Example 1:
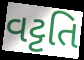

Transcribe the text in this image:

વટ્ટતિ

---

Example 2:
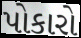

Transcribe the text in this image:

પોકારો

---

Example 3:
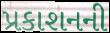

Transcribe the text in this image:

પ્રકાશનની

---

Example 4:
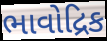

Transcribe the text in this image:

ભાવોદ્રિક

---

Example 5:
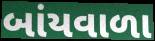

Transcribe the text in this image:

બાંયવાળા